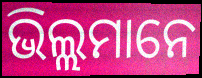
ଭିଲ୍ଲମାନେ